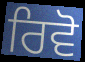
ਰਿਵੋ